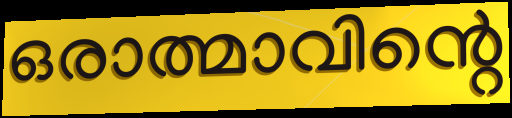
ഒരാത്മാവിന്റെ